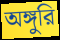
অঙ্গুরি